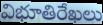
విభూతిరేఖలు